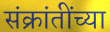
संक्रांतींच्या